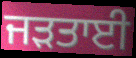
ਜੜਤਾਈ